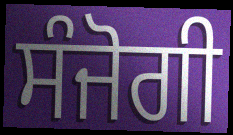
ਸੰਜੋਗੀ